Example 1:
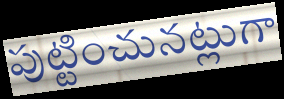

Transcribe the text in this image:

పుట్టించునట్లుగా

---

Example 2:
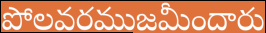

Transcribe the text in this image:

పోలవరముజమీందారు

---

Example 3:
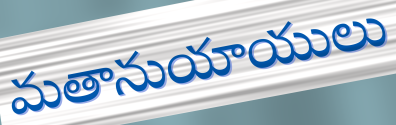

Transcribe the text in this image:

మతానుయాయులు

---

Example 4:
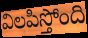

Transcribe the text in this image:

విలపిస్తోంది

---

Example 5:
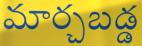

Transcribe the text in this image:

మార్చబడ్డ